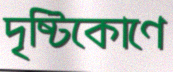
দৃষ্টিকোণে